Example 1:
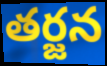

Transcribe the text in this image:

తర్జన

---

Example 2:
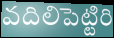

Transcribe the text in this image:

వదిలిపెట్టిరి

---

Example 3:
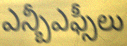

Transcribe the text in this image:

ఎన్బీఎఫ్సీలు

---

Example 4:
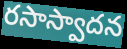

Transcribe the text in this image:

రసాస్వాదన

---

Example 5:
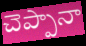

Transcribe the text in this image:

చెప్పానా